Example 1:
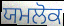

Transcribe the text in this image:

ਯਮਲੋਕ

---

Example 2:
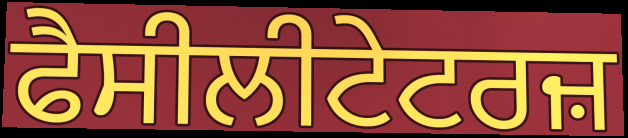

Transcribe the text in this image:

ਫੈਸੀਲੀਟੇਟਰਜ਼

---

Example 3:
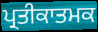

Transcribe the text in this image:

ਪ੍ਰਤੀਕਾਤਮਕ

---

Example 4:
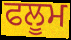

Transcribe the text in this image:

ਫਲੂਮ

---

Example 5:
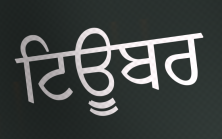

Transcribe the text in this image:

ਟਿਊੁਬਰ